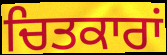
ਚਿਤਕਾਰਾਂ